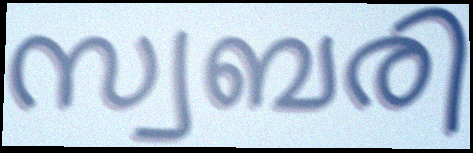
സ്വബരി